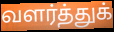
வளர்த்துக்